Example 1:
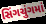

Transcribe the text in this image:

સિંગચુંગમાં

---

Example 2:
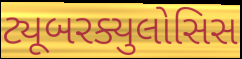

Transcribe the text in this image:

ટ્યૂબરક્યુલોસિસ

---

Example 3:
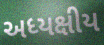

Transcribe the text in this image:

અધ્યક્ષીય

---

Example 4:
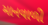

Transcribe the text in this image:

માનવાળી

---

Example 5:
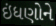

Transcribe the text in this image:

ઇંધણોને